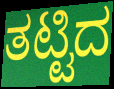
ತಟ್ಟಿದ